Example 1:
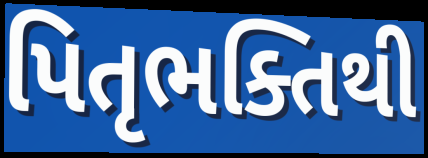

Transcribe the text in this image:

પિતૃભક્તિથી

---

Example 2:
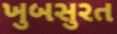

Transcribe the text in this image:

ખુબસુરત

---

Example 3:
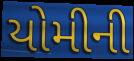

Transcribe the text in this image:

યોમીની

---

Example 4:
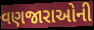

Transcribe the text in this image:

વણજારાઓની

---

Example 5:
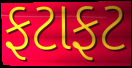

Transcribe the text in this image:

ફટાફટ